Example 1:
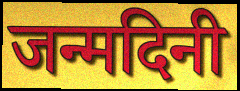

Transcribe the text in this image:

जन्मदिनी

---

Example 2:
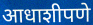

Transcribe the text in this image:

आधाशीपणे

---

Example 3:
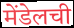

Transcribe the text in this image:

मेंडेलची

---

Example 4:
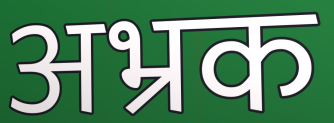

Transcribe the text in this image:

अभ्रक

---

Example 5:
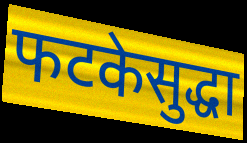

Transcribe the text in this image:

फटकेसुद्धा